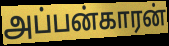
அப்பன்காரன்